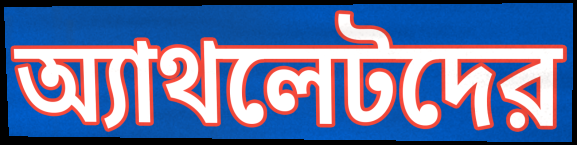
অ্যাথলেটদের